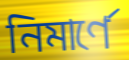
নিমার্ণে